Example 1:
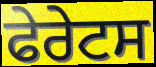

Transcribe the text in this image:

ਫੇਰੇਟਸ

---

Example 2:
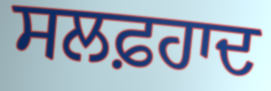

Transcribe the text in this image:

ਸਲਫ਼ਹਾਦ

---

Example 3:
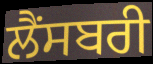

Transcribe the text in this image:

ਲੈਂਸਬਰੀ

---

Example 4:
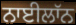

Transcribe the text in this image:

ਨਾਈਲਾੱਨ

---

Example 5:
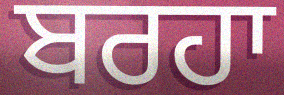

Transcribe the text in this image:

ਬਰਹਾ